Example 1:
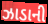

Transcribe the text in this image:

ઝાડાની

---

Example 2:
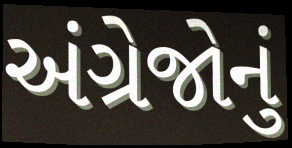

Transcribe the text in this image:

અંગ્રેજોનું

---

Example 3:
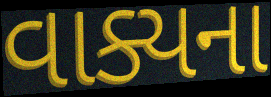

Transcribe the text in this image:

વાક્યના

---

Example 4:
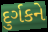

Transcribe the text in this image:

દુર્ગકને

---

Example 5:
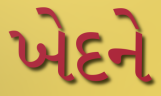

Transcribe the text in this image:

ખેદને